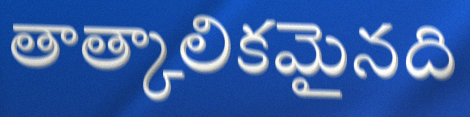
తాత్కాలికమైనది